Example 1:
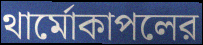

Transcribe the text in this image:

থার্মোকাপলের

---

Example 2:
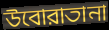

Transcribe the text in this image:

উবোরাতানা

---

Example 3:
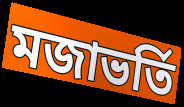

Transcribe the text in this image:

মজাভর্তি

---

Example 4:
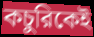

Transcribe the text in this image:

কচুরিকেই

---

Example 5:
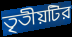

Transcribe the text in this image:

তৃতীয়টির